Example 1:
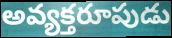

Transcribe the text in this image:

అవ్యక్తరూపుడు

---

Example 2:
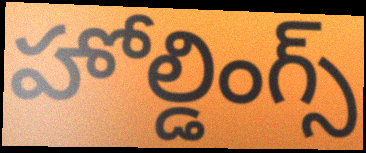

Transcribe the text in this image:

హోల్డింగ్స్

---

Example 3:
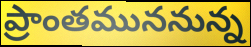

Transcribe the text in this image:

ప్రాంతముననున్న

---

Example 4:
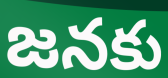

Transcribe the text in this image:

జనకు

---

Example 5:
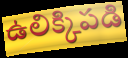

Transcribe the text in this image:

ఉలిక్కిపడి